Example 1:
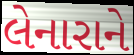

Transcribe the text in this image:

લેનારાને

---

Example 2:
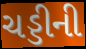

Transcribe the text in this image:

ચડ્ડીની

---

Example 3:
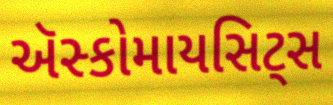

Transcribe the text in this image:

ઍસ્કોમાયસિટ્સ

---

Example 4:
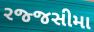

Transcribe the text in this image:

રજ્જસીમા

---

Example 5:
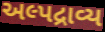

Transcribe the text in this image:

અલ્પદ્રાવ્ય